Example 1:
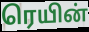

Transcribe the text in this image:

ரெயின்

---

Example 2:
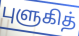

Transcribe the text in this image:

புளுகித்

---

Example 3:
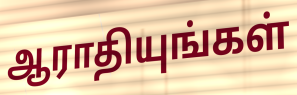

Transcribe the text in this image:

ஆராதியுங்கள்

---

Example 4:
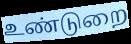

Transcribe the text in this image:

உண்டுறை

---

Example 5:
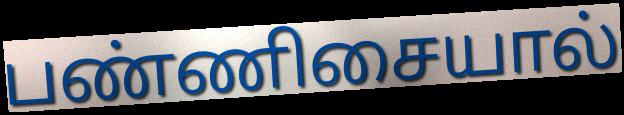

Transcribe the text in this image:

பண்ணிசையால்